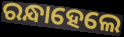
ରନ୍ଧାହେଲେ